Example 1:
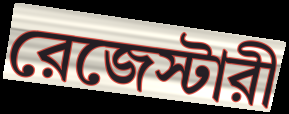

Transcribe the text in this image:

রেজেস্টারী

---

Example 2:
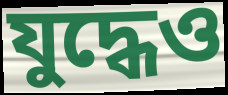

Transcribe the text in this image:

যুদ্ধেও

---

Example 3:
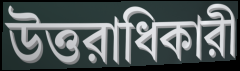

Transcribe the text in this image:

উত্তরাধিকারী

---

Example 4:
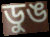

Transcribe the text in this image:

ডুঙ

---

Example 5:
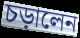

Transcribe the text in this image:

চড়ালেন